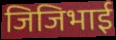
जिजिभाई